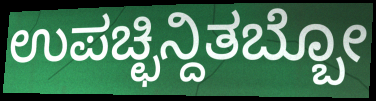
ಉಪಚ್ಛಿನ್ದಿತಬ್ಬೋ